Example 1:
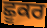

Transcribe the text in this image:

ਛੂਕਰ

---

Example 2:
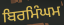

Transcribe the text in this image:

ਬਿਰਮਿੰਘਮ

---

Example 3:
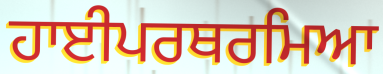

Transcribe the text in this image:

ਹਾਈਪਰਥਰਮਿਆ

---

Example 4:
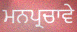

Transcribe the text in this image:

ਮਨਪ੍ਰਚਾਵੇ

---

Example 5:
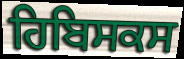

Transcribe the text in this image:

ਹਿਬਿਸਕਸ